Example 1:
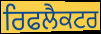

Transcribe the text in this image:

ਰਿਫਲੈਕਟਰ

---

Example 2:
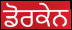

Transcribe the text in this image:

ਡੋਰਕੇਨ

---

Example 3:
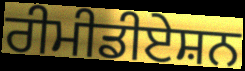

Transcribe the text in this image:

ਰੀਮੀਡੀਏਸ਼ਨ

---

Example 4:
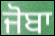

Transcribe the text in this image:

ਜੋਬਾ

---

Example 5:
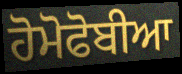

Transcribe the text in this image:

ਹੋਮੋਫੋਬੀਆ